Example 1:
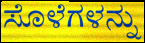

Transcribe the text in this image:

ಸೊಳೆಗಳನ್ನು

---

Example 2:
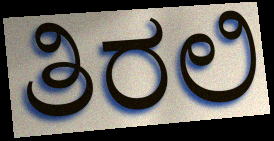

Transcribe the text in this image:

ತಿರಲಿ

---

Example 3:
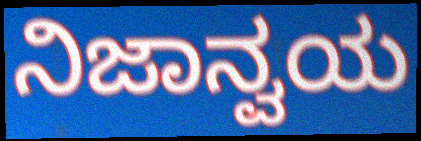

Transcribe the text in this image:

ನಿಜಾನ್ವಯ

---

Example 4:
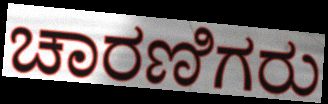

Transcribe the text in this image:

ಚಾರಣಿಗರು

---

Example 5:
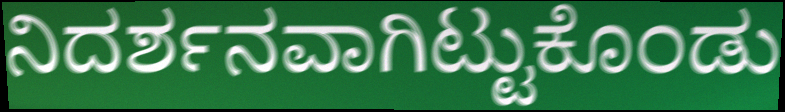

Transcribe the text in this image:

ನಿದರ್ಶನವಾಗಿಟ್ಟುಕೊಂಡು